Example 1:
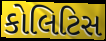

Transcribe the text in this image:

કોલિટિસ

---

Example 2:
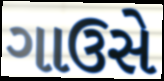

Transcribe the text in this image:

ગાઉસે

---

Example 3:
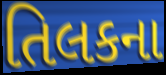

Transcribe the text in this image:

તિલકના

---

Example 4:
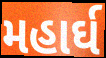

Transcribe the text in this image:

મહાર્ઘ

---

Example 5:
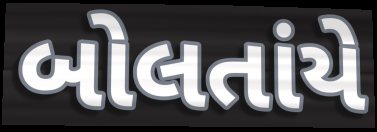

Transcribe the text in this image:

બોલતાંયે